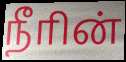
நீரின்